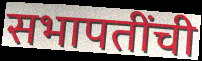
सभापतींची